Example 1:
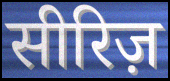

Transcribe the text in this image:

सीरिज़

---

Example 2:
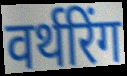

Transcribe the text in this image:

वर्थरिंग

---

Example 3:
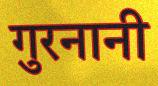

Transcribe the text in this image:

गुरनानी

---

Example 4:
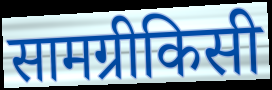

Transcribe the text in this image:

सामग्रीकिसी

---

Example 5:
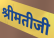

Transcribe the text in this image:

श्रीमतीजी